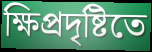
ক্ষিপ্রদৃষ্টিতে